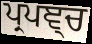
ਪ੍ਰਪਞ੍ਚ